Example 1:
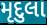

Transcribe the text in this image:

મૃદુલા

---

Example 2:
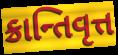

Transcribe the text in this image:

ક્રાન્તિવૃત્ત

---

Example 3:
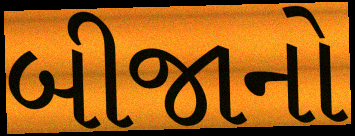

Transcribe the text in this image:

બીજાનો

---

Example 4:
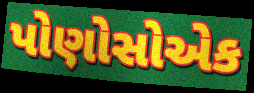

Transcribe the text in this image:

પોણોસોએક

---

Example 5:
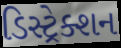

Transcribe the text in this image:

ડિસ્ટ્રેક્શન